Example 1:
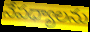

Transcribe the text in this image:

నేపధ్యాలను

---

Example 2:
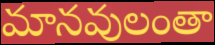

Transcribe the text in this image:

మానవులంతా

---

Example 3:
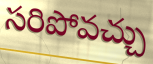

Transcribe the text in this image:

సరిపోవచ్చు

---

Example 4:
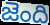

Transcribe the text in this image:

జెంది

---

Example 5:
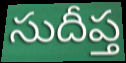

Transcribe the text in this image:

సుదీప్త